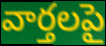
వార్తలపై